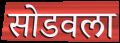
सोडवला